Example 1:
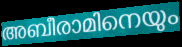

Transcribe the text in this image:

അബീരാമിനെയും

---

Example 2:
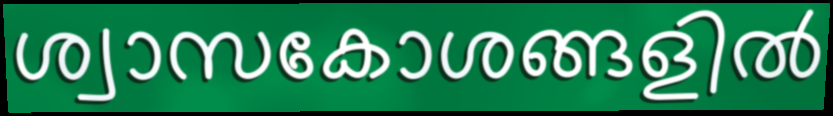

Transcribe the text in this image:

ശ്വാസകോശങ്ങളിൽ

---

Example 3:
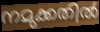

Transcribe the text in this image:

നമുക്കതിൽ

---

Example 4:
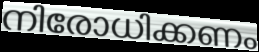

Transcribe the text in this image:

നിരോധിക്കണം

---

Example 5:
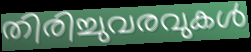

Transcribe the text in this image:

തിരിച്ചുവരവുകൾ